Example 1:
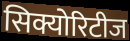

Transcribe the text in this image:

सिक्योरिटीज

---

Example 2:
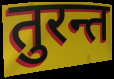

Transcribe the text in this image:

तुरन्त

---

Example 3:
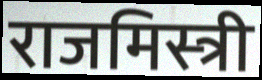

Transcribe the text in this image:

राजमिस्त्री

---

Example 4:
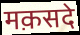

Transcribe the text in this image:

मक़सदे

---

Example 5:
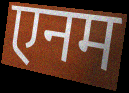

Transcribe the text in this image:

एनम